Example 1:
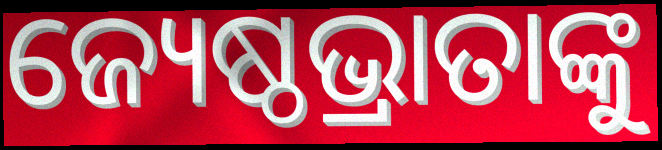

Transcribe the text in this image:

ଜ୍ୟେଷ୍ଠଭ୍ରାତାଙ୍କୁ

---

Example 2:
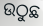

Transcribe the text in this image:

ଉଠୁଛ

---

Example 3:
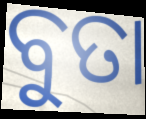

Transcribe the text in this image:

ବୁତା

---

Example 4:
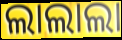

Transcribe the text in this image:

ଲାଲାଲା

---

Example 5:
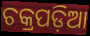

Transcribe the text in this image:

ଚକ୍ରପଡ଼ିଆ